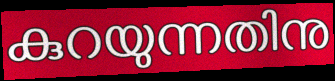
കുറയുന്നതിനു